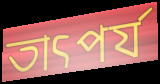
তাৎপৰ্য